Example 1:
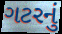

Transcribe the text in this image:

ગટરનું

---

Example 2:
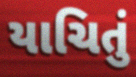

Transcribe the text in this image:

યાચિતું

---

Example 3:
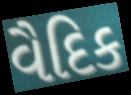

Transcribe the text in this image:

વૈદિક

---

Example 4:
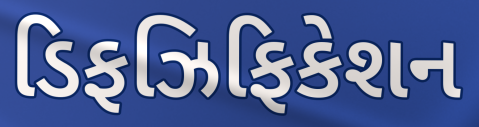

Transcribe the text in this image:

ડિફઝિફિકેશન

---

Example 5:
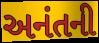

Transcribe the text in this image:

અનંતની